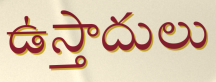
ఉస్తాదులు